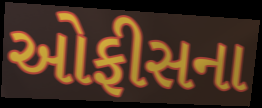
ઓફીસના